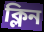
ক্লিন